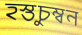
হস্তচুম্বন